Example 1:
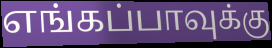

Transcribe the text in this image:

எங்கப்பாவுக்கு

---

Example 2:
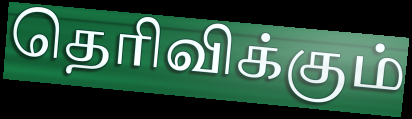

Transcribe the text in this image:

தெரிவிக்கும்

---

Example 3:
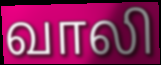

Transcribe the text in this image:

வாலி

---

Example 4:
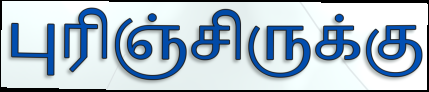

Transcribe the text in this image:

புரிஞ்சிருக்கு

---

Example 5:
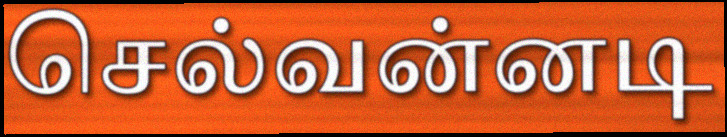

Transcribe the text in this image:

செல்வன்னடி